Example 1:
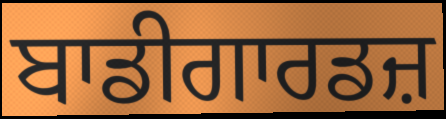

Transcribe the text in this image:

ਬਾਡੀਗਾਰਡਜ਼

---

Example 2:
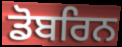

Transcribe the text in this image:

ਡੋਬਰਿਨ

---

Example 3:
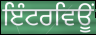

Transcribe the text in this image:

ਇੰਟਰਵਿਊਂ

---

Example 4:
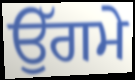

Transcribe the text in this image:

ਉੱਗਮੇ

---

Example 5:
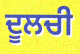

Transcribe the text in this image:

ਦੂਲਚੀ